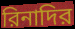
রিনাদির